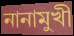
নানামুখী